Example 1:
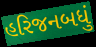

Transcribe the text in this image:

હરિજનબધું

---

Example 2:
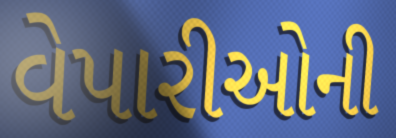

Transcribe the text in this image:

વેપારીઓની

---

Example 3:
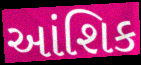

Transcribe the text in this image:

આંશિક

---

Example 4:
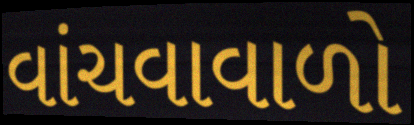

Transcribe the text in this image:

વાંચવાવાળો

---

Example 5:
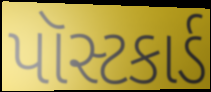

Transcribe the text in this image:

પૉસ્ટકાર્ડ